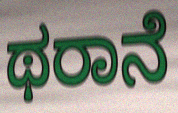
ಥರಾನೆ